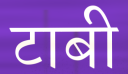
टाबी